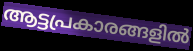
ആട്ടപ്രകാരങ്ങളിൽ